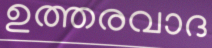
ഉത്തരവാദ